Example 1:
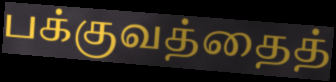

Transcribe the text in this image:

பக்குவத்தைத்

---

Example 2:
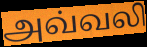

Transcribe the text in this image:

அவ்வலி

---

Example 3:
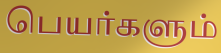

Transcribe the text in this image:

பெயர்களும்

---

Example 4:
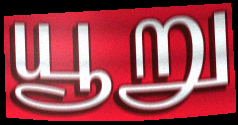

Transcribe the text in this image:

யூறு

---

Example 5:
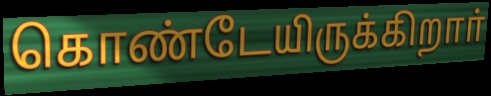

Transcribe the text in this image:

கொண்டேயிருக்கிறார்